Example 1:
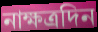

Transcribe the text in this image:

নাক্ষত্রদিন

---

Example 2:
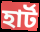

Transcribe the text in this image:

হার্ট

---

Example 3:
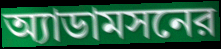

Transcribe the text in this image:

অ্যাডামসনের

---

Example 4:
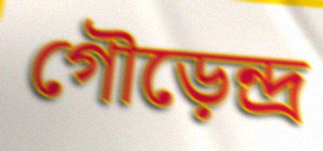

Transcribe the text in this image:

গৌড়েন্দ্র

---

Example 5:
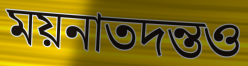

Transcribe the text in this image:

ময়নাতদন্তও